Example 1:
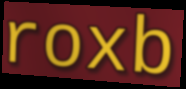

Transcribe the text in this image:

roxb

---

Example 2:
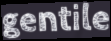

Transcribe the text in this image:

gentile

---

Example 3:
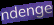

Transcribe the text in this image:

ndenge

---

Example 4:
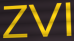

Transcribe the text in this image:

ZVI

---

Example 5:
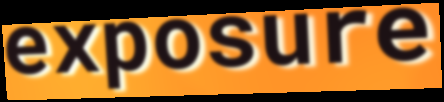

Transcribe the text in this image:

exposure